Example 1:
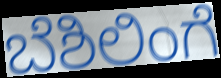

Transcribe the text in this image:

ಬೆಶಿಲಿಂಗೆ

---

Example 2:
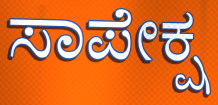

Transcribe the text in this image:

ಸಾಪೇಕ್ಷ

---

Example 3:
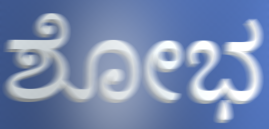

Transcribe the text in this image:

ಶೋಭ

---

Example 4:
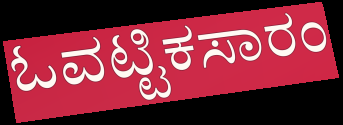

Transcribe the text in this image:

ಓವಟ್ಟಿಕಸಾರಂ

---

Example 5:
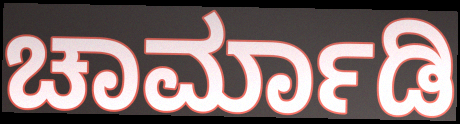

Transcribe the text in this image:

ಚಾರ್ಮಾಡಿ